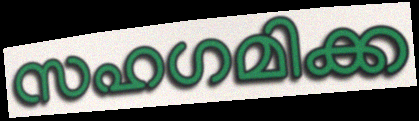
സഹഗമിക്ക